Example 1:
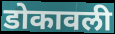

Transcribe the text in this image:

डोकावली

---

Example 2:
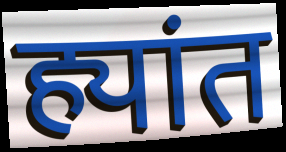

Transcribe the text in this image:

ह्यांत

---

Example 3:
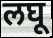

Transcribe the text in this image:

लघू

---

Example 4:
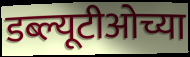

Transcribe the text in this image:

डब्ल्यूटीओच्या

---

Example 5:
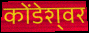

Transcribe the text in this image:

कोंडेश्वर